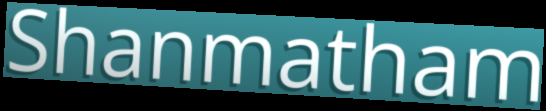
Shanmatham